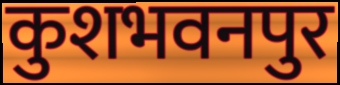
कुशभवनपुर